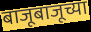
बाजूबाजूच्या